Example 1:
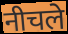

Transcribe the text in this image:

नीचले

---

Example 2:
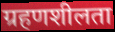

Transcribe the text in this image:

ग्रहणशीलता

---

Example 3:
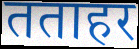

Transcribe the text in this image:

तताहर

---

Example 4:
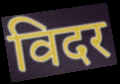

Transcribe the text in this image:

विदर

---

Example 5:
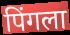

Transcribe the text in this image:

पिंगला